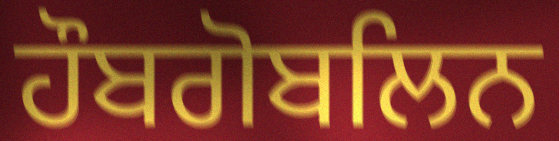
ਹੌਬਗੋਬਲਿਨ